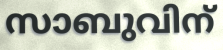
സാബുവിന്